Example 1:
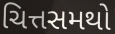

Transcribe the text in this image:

ચિત્તસમથો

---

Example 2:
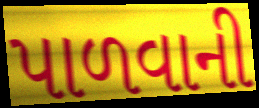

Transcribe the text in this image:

પાળવાની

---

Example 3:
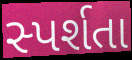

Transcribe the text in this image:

સ્પર્શતા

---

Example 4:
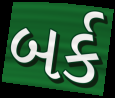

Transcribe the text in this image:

બર્ક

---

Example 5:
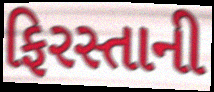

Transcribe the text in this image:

ફિરસ્તાની